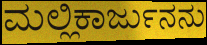
ಮಲ್ಲಿಕಾರ್ಜುನನು